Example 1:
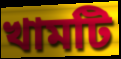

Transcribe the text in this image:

খামটি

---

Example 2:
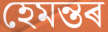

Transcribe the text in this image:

হেমন্তৰ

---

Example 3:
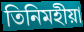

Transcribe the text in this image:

তিনিমহীয়া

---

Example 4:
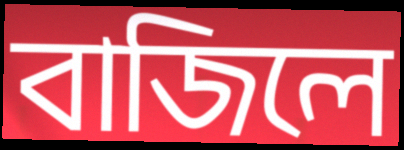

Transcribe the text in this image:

বাজিলে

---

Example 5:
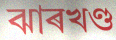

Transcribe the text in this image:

ঝাৰখণ্ড